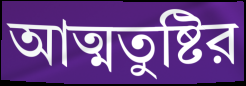
আত্মতুষ্টির